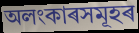
অলংকাৰসমূহৰ